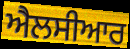
ਐਲਸੀਆਰ